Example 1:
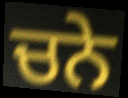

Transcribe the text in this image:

ਚਨੇ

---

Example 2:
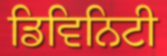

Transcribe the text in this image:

ਡਿਵਿਨਿਟੀ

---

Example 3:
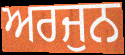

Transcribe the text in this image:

ਅਰਜੁਨ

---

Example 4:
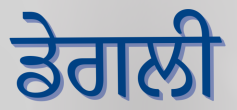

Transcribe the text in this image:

ਡੇਗਲੀ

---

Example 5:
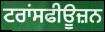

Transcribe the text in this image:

ਟਰਾਂਸਫੀਊਜ਼ਨ